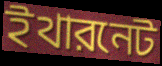
ইথারনেট